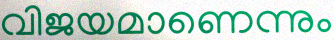
വിജയമാണെന്നും